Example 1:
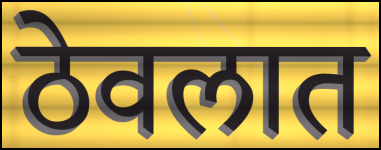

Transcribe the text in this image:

ठेवलात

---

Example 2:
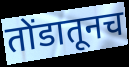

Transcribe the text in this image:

तोंडातूनच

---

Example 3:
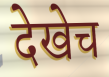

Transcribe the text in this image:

देखेच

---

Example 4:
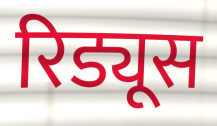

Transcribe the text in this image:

रिड्यूस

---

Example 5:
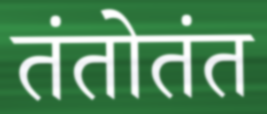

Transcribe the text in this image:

तंतोतंत